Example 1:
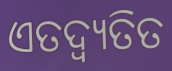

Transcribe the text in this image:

ଏତଦ୍ବ୍ୟତିତ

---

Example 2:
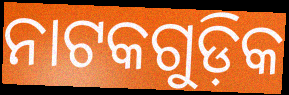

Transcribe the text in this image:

ନାଟକଗୁଡ଼ିକ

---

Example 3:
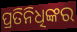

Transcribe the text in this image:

ପ୍ରତିନିଧିଙ୍କର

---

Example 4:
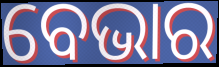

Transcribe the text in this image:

ବେଭାର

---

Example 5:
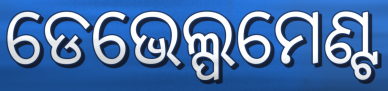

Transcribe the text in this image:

ଡେଭେଲ୍ପମେଣ୍ଟ